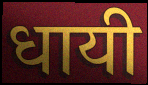
धायी